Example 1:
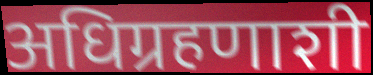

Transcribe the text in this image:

अधिग्रहणाशी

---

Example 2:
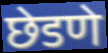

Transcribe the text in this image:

छेडणे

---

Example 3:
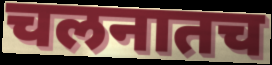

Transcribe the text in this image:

चलनातच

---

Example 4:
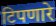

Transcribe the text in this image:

टिपणारे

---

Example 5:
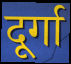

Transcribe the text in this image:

दूर्गा